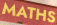
MATHS